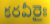
కరవీరైః